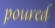
poured